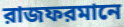
রাজফরমানে